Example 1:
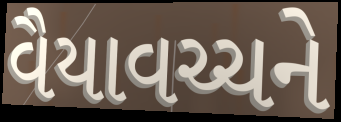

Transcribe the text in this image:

વૈયાવચ્ચને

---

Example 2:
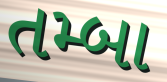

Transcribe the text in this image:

તમ્બા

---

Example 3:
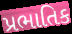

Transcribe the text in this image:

પ્રભાતિક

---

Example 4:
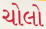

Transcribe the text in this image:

ચોલો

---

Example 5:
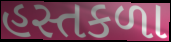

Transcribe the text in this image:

હસ્તકળા